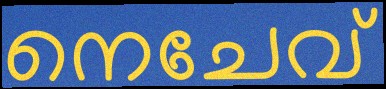
നെചേവ്